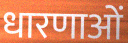
धारणाओं